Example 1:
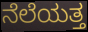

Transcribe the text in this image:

ನೆಲೆಯತ್ತ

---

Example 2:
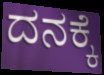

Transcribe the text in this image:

ದನಕ್ಕೆ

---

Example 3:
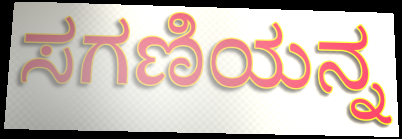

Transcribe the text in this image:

ಸಗಣಿಯನ್ನ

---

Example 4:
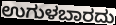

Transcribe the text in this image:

ಉಗುಳಬಾರದು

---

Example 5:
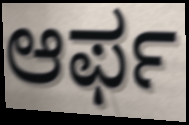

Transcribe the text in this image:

ಆರ್ಫ